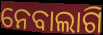
ନେବାଲାଗି